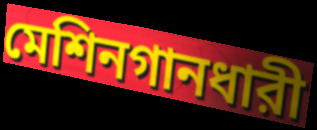
মেশিনগানধারী